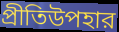
প্রীতিউপহার